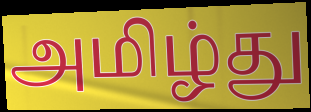
அமிழ்து